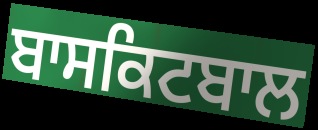
ਬਾਸਕਿਟਬਾਲ